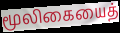
மூலிகையைத்